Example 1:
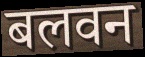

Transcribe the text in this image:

बलवन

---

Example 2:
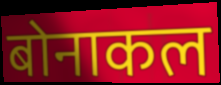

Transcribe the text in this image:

बोनाकल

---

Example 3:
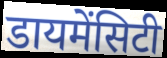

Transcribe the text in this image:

डायमेंसिटी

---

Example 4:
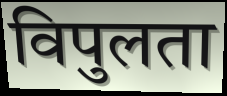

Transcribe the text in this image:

विपुलता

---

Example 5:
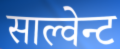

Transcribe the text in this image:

साल्वेन्ट